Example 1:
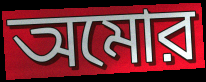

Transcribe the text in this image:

অমোর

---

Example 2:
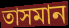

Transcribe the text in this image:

তাসমান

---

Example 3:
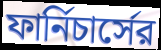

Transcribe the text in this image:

ফার্নিচার্সের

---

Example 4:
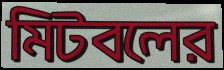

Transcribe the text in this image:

মিটবলের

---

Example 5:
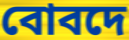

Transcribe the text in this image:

বোবদে